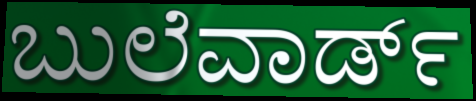
ಬುಲೆವಾರ್ಡ್